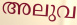
അലുവ